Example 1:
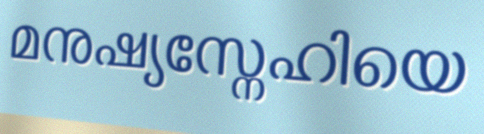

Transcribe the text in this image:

മനുഷ്യസ്നേഹിയെ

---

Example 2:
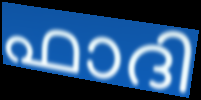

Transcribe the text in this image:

ഫാദി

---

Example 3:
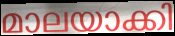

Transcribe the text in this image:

മാലയാക്കി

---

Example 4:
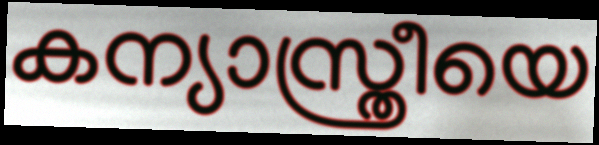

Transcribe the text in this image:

കന്യാസ്ത്രീയെ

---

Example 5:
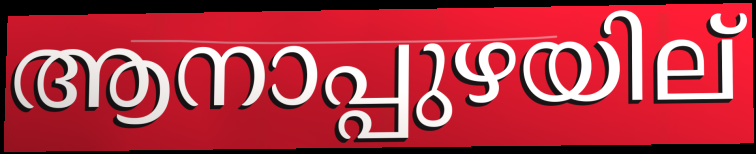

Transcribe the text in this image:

ആനാപ്പുഴയില്